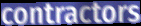
contractors